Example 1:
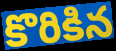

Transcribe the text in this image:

కొరికిన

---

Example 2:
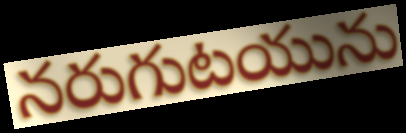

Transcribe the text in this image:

నరుగుటయును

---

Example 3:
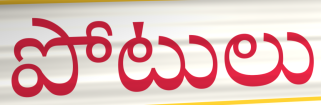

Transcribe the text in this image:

పోటులు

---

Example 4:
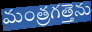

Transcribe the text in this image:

మంత్రగత్తెను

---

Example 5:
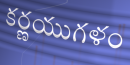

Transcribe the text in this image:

కర్ణయుగళం